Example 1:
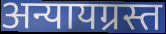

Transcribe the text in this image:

अन्यायग्रस्त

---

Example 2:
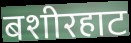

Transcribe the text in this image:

बशीरहाट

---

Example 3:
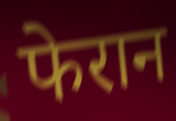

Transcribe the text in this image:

फेरान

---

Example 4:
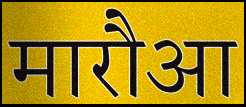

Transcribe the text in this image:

मारौआ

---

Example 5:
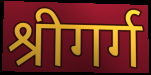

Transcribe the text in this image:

श्रीगर्ग